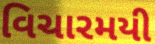
વિચારમયી